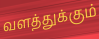
வளத்துக்கும்